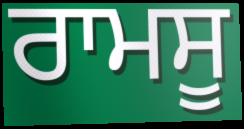
ਰਾਮਸੂ